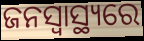
ଜନସ୍ଵାସ୍ଥ୍ୟରେ